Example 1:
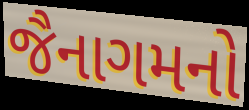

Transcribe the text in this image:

જૈનાગમનો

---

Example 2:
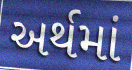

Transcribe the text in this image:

અર્થમાં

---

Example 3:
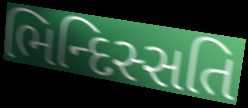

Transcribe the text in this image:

ભિન્દિસ્સતિ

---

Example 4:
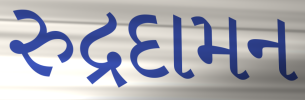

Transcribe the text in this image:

રુદ્રદામન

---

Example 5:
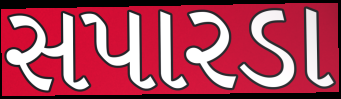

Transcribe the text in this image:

સપારડા